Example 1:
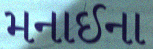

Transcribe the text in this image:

મનાઈના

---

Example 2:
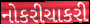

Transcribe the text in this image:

નોકરીચાકરી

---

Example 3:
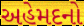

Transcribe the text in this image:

અહેમદનો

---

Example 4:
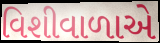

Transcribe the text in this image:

વિશીવાળાએ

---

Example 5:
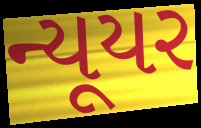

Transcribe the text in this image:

ન્યૂયર